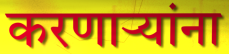
करणाऱ्यांना